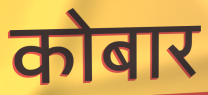
कोबार